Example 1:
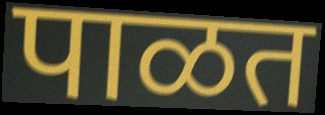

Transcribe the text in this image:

पाळत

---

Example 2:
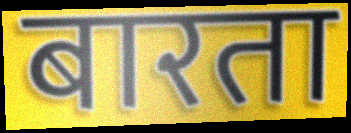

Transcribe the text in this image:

बारता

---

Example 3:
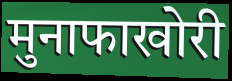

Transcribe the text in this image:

मुनाफाखोरी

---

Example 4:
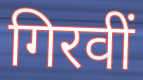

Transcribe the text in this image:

गिरवीं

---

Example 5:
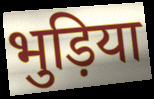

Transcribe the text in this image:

भुड़िया